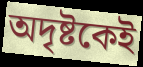
অদৃষ্টকেই